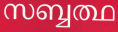
സബ്ബത്ഥ